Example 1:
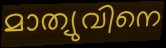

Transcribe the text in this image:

മാത്യുവിനെ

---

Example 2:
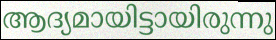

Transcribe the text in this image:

ആദ്യമായിട്ടായിരുന്നു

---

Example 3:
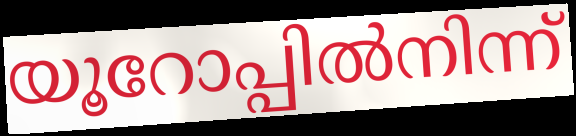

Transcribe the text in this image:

യൂറോപ്പിൽനിന്ന്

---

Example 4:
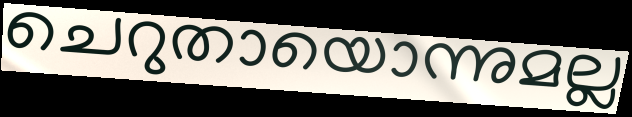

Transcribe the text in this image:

ചെറുതായൊന്നുമല്ല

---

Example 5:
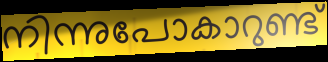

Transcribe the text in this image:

നിന്നുപോകാറുണ്ട്